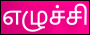
எழுச்சி